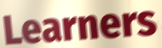
Learners